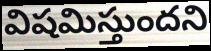
విషమిస్తుందని